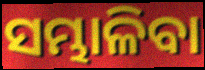
ସମ୍ଭାଳିବା